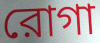
রোগা